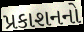
પ્રકાશનનો